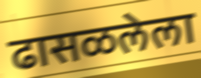
ढासळलेला